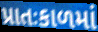
પ્રાતઃકાળમાં